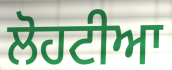
ਲੋਹਟੀਆ